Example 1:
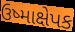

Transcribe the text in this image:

ઉષ્માક્ષેપક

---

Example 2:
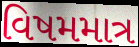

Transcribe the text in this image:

વિષમમાત્ર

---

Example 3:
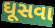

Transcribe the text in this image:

ઘૂસવા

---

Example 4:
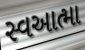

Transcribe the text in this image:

સ્વઆત્મા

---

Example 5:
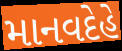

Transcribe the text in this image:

માનવદેહે